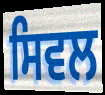
ਸਿਵਲ